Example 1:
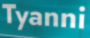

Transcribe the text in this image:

Tyanni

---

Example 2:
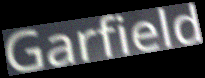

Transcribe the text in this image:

Garfield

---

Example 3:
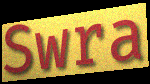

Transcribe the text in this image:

Swra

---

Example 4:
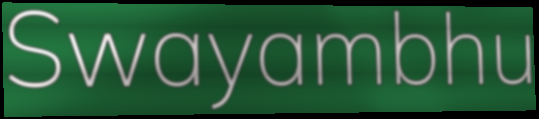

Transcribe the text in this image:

Swayambhu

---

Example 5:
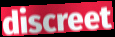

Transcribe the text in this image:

discreet